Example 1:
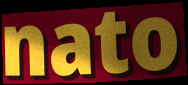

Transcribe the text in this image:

nato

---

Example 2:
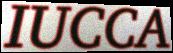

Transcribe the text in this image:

IUCCA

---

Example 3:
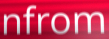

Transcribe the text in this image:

nfrom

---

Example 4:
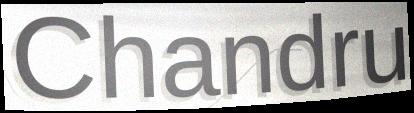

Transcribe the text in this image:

Chandru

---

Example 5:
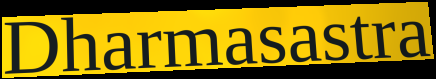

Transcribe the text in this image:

Dharmasastra